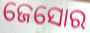
ଜେସୋର